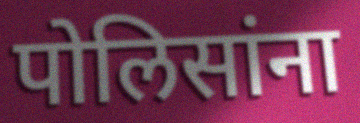
पोलिसांना